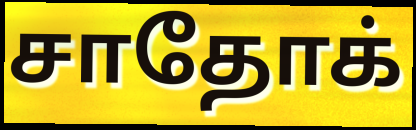
சாதோக்